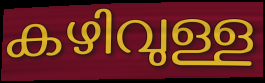
കഴിവുള്ള